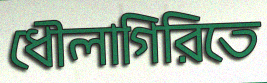
ধৌলাগিরিতে